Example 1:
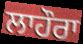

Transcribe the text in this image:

ਲਾਹੌਰਾ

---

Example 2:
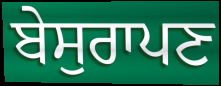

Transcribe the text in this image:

ਬੇਸੁਰਾਪਣ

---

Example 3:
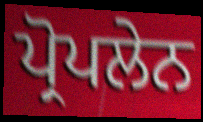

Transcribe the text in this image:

ਪ੍ਰੋਪਲੇਨ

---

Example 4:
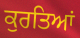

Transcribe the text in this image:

ਕੁਰਤਿਆਂ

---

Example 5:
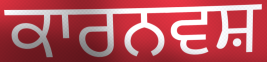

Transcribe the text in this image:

ਕਾਰਨਵਸ਼